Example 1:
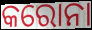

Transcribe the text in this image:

କରୋନା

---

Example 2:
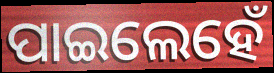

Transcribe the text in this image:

ପାଇଲେହେଁ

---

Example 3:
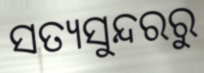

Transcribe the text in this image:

ସତ୍ୟସୁନ୍ଦରରୁ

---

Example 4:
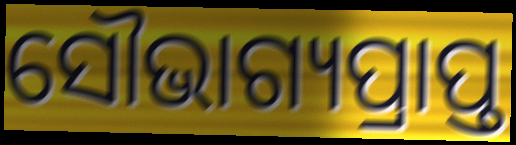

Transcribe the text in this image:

ସୌଭାଗ୍ୟପ୍ରାପ୍ତ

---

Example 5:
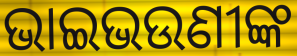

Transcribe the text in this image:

ଭାଇଭଉଣୀଙ୍କ